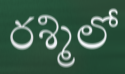
రశ్మిలో